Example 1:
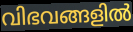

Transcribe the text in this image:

വിഭവങ്ങളിൽ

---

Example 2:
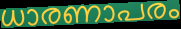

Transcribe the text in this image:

ധാരണാപരം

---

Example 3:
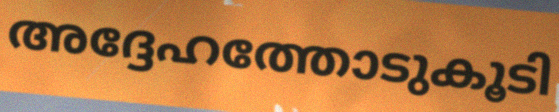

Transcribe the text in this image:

അദ്ദേഹത്തോടുകൂടി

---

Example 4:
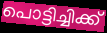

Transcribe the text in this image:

പൊട്ടിച്ചിക്ക്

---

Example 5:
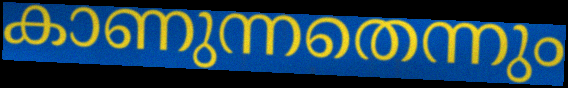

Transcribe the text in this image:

കാണുന്നതെന്നും